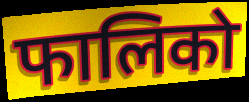
फालिको